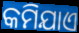
କମିଯାଏ